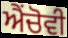
ਐਂਚੋਵੀ